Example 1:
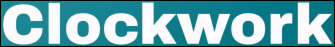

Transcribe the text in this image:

Clockwork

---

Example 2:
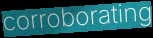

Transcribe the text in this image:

corroborating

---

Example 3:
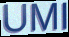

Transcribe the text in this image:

UMI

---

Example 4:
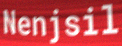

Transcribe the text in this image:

Nenjsil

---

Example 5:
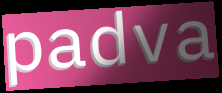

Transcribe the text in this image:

padva